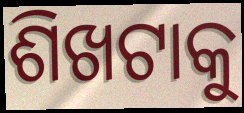
ଶିଖଟାକୁ